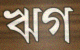
ঋগ